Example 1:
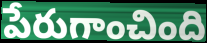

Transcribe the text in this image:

పేరుగాంచింది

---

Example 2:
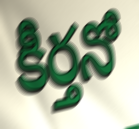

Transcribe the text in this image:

కీర్తనో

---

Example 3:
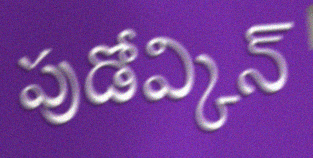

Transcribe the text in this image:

పుడోవ్కిన్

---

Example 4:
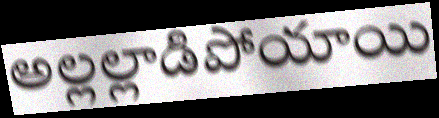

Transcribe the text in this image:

అల్లల్లాడిపోయాయి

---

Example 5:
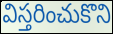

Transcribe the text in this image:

విస్తరించుకొని